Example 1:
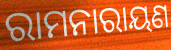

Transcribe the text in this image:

ରାମନାରାୟଣ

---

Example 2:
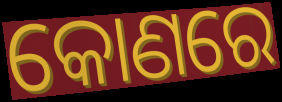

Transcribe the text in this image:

କୋଣରେ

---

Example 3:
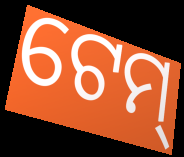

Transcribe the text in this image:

ଟେମ୍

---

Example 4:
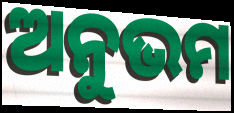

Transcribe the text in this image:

ଅନୁଭମ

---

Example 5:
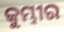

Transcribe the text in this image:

କୁମ୍ଭୀର